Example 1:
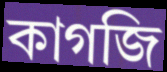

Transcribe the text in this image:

কাগজি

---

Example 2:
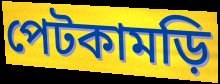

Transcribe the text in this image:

পেটকামড়ি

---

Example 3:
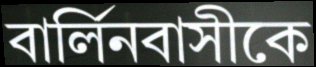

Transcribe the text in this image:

বার্লিনবাসীকে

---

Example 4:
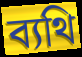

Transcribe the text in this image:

ব্যথি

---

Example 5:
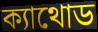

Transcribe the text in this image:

ক্যাথোড